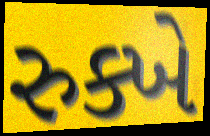
રુક્ખે